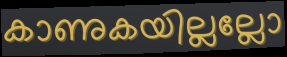
കാണുകയില്ലല്ലോ